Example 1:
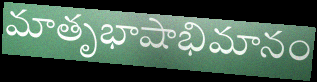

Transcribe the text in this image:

మాతృభాషాభిమానం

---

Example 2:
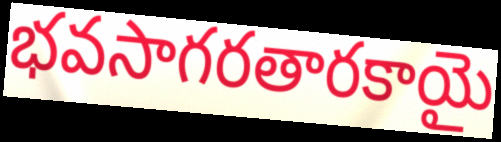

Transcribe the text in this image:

భవసాగరతారకాయై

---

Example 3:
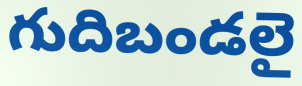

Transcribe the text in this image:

గుదిబండలై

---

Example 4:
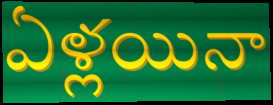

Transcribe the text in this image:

ఏళ్లయినా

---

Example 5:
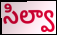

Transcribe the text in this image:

సిల్వా